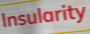
Insularity